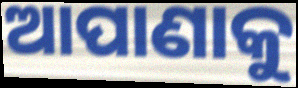
ଆପାଣାକୁ